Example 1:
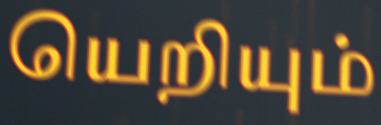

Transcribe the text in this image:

யெறியும்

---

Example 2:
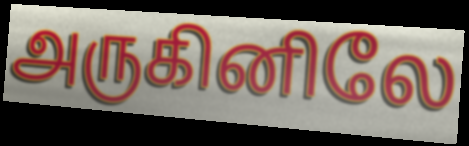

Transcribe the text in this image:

அருகினிலே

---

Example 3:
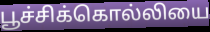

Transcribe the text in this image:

பூச்சிக்கொல்லியை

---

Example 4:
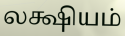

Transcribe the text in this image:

லக்ஷியம்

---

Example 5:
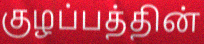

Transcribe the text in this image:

குழப்பத்தின்